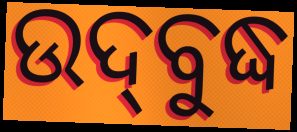
ଉଦ୍‌ବୁଦ୍ଧ